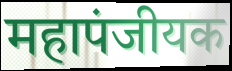
महापंजीयक